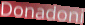
Donadoni